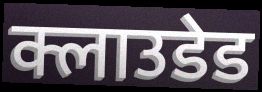
क्लाउडेड